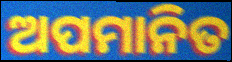
ଅପମାନିତ